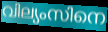
വില്യംസിനെ